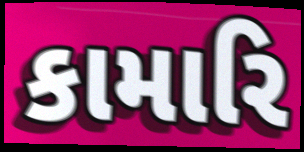
કામારિ